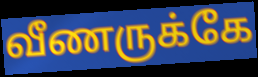
வீணருக்கே